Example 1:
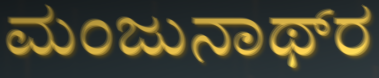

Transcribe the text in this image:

ಮಂಜುನಾಥ್‌ರ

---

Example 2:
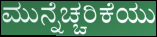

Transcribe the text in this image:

ಮುನ್ನೆಚ್ಚರಿಕೆಯು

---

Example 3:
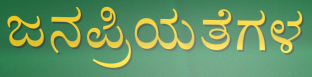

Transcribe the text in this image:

ಜನಪ್ರಿಯತೆಗಳ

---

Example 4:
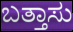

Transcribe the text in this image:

ಬತ್ತಾಸು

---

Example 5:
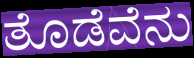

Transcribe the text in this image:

ತೊಡೆವೆನು